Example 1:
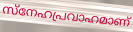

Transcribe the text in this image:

സ്നേഹപ്രവാഹമാണ്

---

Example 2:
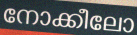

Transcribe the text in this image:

നോക്കീലോ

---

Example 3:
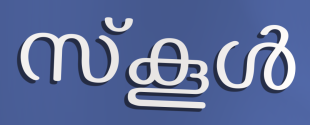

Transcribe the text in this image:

സ്‌കൂൾ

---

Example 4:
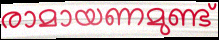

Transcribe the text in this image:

രാമായണമുണ്ട്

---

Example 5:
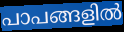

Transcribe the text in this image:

പാപങ്ങളിൽ